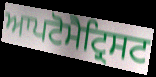
ਆਪਟੋਮੈਟ੍ਰਿਸਟ